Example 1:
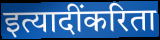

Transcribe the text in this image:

इत्यादींकरिता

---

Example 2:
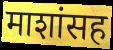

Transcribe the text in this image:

माशांसह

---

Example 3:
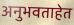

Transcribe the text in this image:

अनुभवताहेत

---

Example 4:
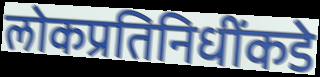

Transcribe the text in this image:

लोकप्रतिनिधींकडे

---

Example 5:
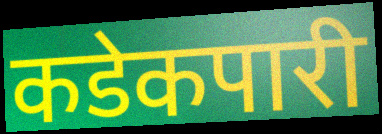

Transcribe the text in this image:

कडेकपारी